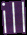
ill